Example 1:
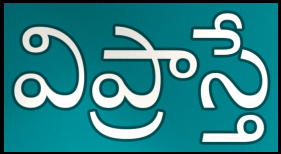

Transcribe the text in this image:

విప్రాస్తే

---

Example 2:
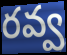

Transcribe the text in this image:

రవ్వ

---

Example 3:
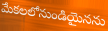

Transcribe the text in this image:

మేకలలోనుండియైనను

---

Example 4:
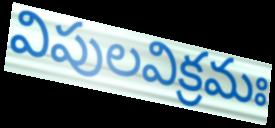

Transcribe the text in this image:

విపులవిక్రమః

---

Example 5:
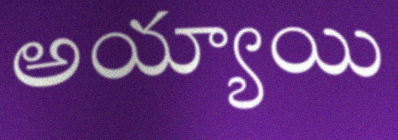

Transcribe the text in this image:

అయ్యాయి